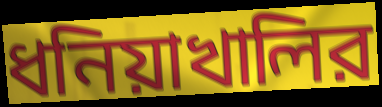
ধনিয়াখালির